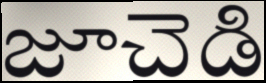
జూచెడి